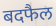
बदफैल